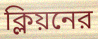
ক্লিয়নের